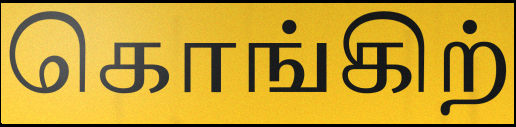
கொங்கிற்